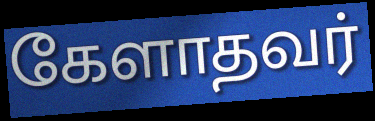
கேளாதவர்